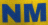
NM